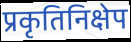
प्रकृतिनिक्षेप